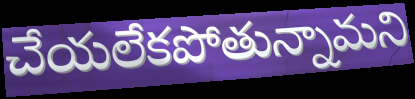
చేయలేకపోతున్నామని